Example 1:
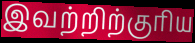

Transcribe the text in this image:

இவற்றிற்குரிய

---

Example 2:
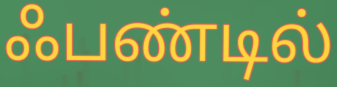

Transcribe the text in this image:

ஃபண்டில்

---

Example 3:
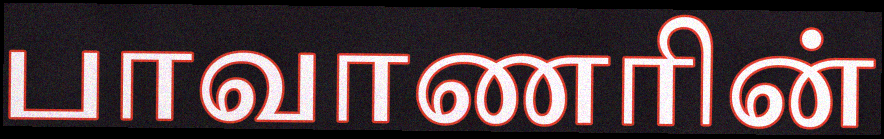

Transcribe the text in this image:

பாவாணரின்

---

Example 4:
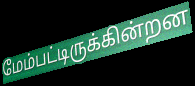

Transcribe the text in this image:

மேம்பட்டிருக்கின்றன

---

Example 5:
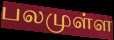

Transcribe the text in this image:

பலமுள்ள